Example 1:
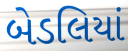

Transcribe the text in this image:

બેડલિયાં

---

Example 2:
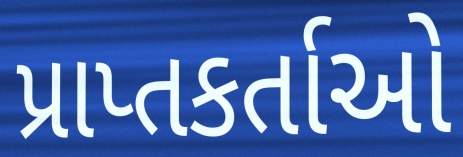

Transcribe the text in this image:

પ્રાપ્તકર્તાઓ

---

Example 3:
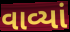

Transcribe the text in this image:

વાવ્યાં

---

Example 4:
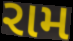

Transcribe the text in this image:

રામ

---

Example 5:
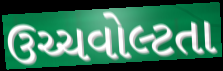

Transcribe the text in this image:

ઉચ્ચવોલ્ટતા